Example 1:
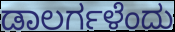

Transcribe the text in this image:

ಡಾಲರ್ಗಳೆಂದು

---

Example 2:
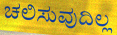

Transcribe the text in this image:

ಚಲಿಸುವುದಿಲ್ಲ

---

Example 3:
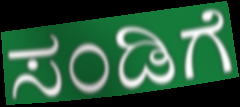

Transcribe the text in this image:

ಸಂಡಿಗೆ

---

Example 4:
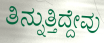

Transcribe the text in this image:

ತಿನ್ನುತ್ತಿದ್ದೇವು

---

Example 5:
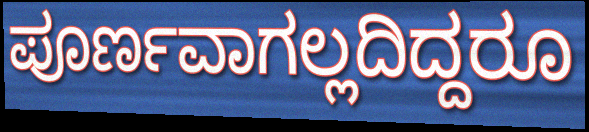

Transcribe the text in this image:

ಪೂರ್ಣವಾಗಲ್ಲದಿದ್ದರೂ